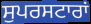
ਸੁਪਰਸਟਾਰਾਂ